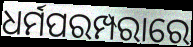
ଧର୍ମପରମ୍ପରାରେ